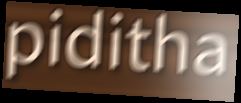
piditha